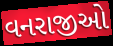
વનરાજીઓ